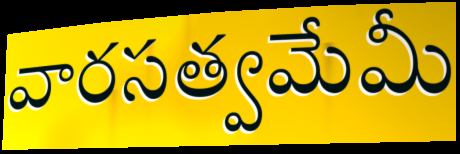
వారసత్వమేమీ